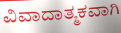
ವಿವಾದಾತ್ಮಕವಾಗಿ